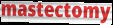
mastectomy